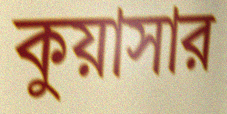
কুয়াসার